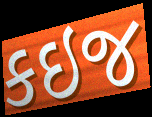
કઇજ